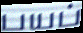
பயப்